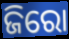
ଜିରୋ